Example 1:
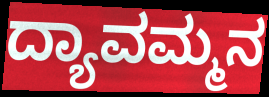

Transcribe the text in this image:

ದ್ಯಾವಮ್ಮನ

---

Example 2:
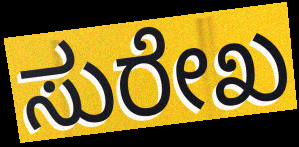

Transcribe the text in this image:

ಸುರೇಖ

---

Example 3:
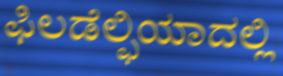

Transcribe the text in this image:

ಫಿಲಡೆಲ್ಫಿಯಾದಲ್ಲಿ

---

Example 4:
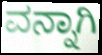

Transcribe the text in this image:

ವನ್ನಾಗಿ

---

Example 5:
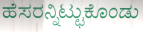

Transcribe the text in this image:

ಹೆಸರನ್ನಿಟ್ಟುಕೊಂಡು